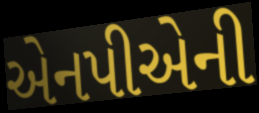
એનપીએની